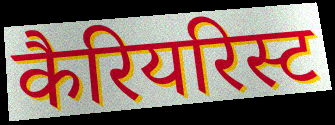
कैरियरिस्ट